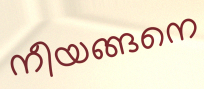
നീയങ്ങനെ